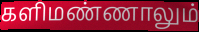
களிமண்ணாலும்